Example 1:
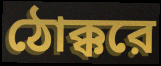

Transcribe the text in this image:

ঠোক্করে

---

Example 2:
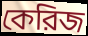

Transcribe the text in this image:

কেরিজ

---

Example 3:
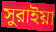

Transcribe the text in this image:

সুরাইয়া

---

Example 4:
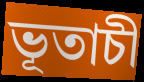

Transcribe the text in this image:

ভূতাচী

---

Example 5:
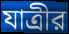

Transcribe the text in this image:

যাত্রীর